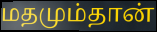
மதமும்தான்